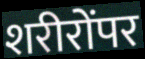
शरीरोंपर